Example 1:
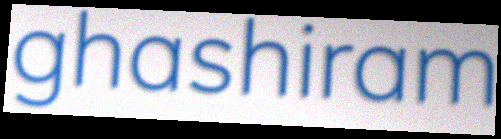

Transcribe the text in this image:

ghashiram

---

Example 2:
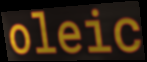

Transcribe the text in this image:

oleic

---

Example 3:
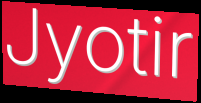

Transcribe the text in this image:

Jyotir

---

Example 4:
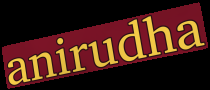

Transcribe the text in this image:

anirudha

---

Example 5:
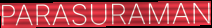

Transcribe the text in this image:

PARASURAMAN